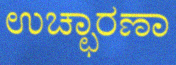
ಉಚ್ಛಾರಣಾ